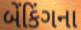
બેંકિંગના